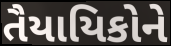
તૈયાયિકોને